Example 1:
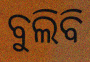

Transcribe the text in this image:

ବୁଲିବି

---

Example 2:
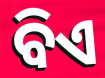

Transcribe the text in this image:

ବିଏ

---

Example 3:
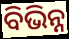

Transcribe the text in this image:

ବିଭିନ୍ନ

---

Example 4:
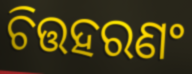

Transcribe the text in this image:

ଚିତ୍ତହରଣଂ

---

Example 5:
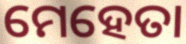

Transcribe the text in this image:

ମେହେତା